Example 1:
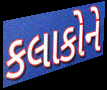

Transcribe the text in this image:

કલાકોને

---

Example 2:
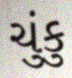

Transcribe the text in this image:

ચુંકુ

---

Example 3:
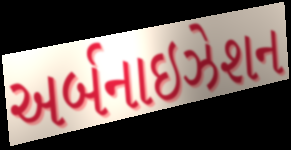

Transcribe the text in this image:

અર્બનાઇઝેશન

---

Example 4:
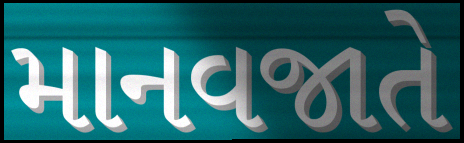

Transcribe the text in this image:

માનવજાતે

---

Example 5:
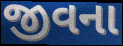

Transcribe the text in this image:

જીવના